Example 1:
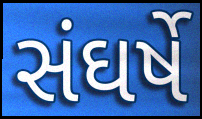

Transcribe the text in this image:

સંઘર્ષે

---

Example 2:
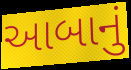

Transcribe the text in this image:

આબાનું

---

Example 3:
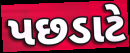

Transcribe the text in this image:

પછડાટે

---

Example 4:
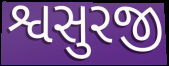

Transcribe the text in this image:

શ્વસુરજી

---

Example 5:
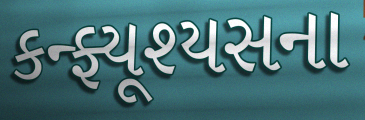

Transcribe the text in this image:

કન્ફ્યૂશ્યસના